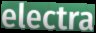
electra